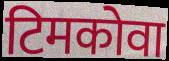
टिमकोवा